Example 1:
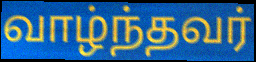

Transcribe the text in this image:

வாழ்ந்தவர்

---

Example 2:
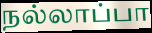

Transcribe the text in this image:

நல்லாப்பா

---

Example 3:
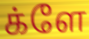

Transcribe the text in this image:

க்ளே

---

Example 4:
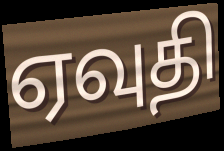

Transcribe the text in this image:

ஏவுதி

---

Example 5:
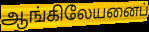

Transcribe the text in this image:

ஆங்கிலேயனைப்